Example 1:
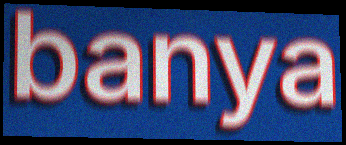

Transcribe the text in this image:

banya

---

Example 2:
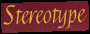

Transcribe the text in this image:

Stereotype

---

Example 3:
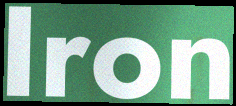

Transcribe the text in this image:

Iron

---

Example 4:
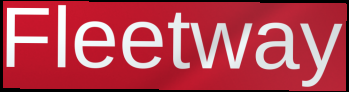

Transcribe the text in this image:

Fleetway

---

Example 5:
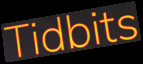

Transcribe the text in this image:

Tidbits